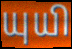
யுயி